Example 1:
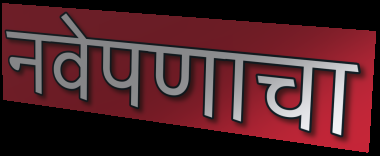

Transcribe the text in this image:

नवेपणाचा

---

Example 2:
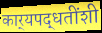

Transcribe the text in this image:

कार्यपद्धतींशी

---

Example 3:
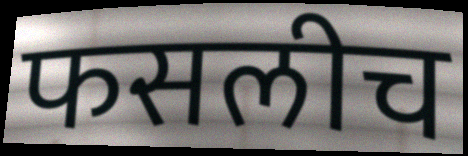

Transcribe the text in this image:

फसलीच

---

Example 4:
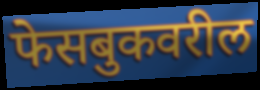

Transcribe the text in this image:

फेसबुकवरील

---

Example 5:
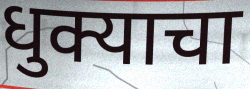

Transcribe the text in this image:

धुक्याचा